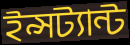
ইন্সট্যান্ট